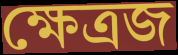
ক্ষেত্রজ